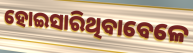
ହୋଇସାରିଥିବାବେଳେ